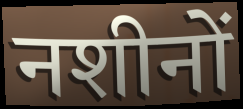
नशीनों